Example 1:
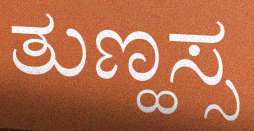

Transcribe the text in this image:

ತುಣ್ಹಸ್ಸ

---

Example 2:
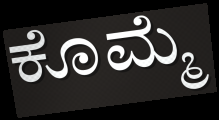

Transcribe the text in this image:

ಕೊಮ್ಮೆ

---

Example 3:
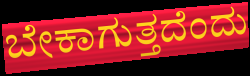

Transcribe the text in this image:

ಬೇಕಾಗುತ್ತದೆಂದು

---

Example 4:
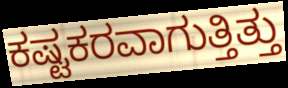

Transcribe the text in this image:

ಕಷ್ಟಕರವಾಗುತ್ತಿತ್ತು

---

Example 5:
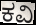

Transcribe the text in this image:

ಕವಿ